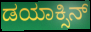
ಡಯಾಕ್ಸಿನ್